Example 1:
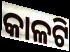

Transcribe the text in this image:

କାଳଟି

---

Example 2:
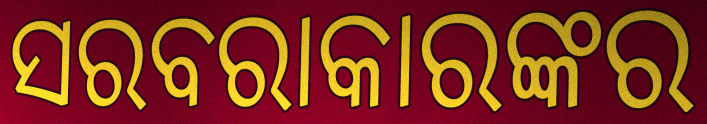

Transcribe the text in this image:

ସରବରାକାରଙ୍କର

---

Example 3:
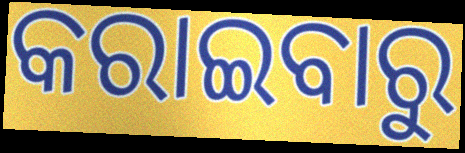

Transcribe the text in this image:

କରାଇବାରୁ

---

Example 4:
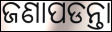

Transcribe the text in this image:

ଜଣାପଡନ୍ତା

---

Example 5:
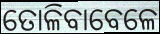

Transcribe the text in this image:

ତୋଳିବାବେଳେ